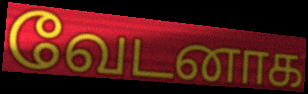
வேடனாக